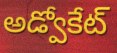
అడ్వోకేట్